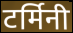
टर्मिनी